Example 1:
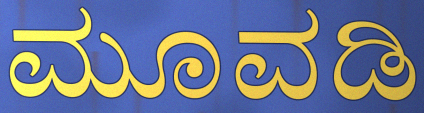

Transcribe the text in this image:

ಮೂವಡಿ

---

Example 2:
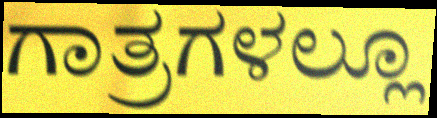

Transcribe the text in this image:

ಗಾತ್ರಗಳಲ್ಲೂ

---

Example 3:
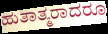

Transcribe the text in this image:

ಹುತಾತ್ಮರಾದರೂ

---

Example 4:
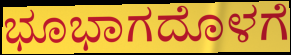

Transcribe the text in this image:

ಭೂಭಾಗದೊಳಗೆ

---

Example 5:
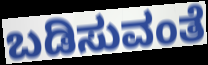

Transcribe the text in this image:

ಬಡಿಸುವಂತೆ